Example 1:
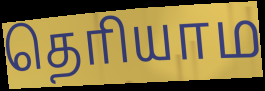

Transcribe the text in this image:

தெரியாம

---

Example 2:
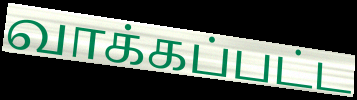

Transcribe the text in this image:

வாக்கப்பட்ட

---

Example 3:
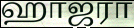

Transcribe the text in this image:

ஹாஜரா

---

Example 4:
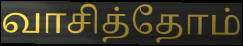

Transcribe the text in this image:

வாசித்தோம்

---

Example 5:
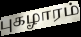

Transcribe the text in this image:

புகழாரம்